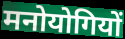
मनोयोगियों